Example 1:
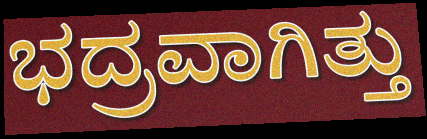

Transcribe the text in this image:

ಭದ್ರವಾಗಿತ್ತು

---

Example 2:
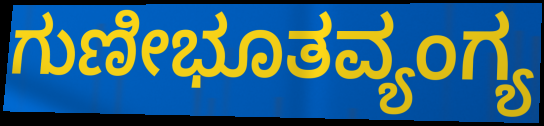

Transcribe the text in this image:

ಗುಣೀಭೂತವ್ಯಂಗ್ಯ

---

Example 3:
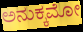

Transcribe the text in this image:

ಅನುಕ್ಕಮೋ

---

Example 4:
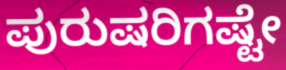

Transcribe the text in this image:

ಪುರುಷರಿಗಷ್ಟೇ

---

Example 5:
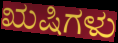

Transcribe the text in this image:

ಋಷಿಗಳು